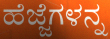
ಹೆಜ್ಜೆಗಳನ್ನ